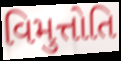
વિમુત્તોતિ